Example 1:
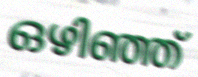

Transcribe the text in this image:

ഒഴിഞ്ഞ്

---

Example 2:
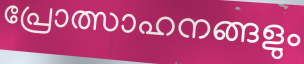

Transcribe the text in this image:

പ്രോത്സാഹനങ്ങളും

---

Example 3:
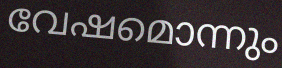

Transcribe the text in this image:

വേഷമൊന്നും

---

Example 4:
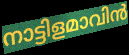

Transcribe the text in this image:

നാട്ടിളമാവിൻ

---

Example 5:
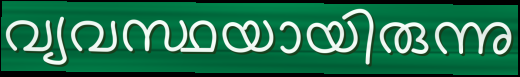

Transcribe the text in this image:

വ്യവസ്ഥയായിരുന്നു